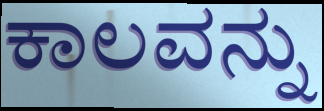
ಕಾಲವನ್ನು